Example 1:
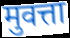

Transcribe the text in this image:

मुवत्ता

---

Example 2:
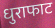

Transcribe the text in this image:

धुराफाट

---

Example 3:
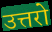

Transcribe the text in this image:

उत्तरो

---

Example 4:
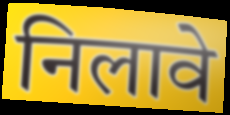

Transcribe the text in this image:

निलावे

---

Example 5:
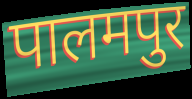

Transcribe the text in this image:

पालमपुर